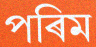
পৰিম